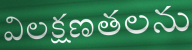
విలక్షణతలను